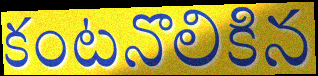
కంటనొలికిన